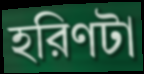
হরিণটা